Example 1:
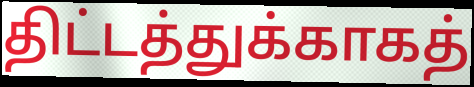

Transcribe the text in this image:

திட்டத்துக்காகத்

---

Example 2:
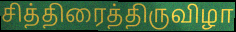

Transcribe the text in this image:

சித்திரைத்திருவிழா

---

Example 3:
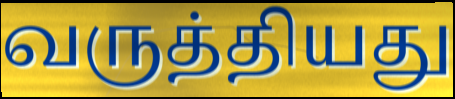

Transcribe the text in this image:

வருத்தியது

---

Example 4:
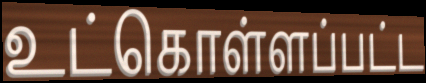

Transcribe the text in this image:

உட்கொள்ளப்பட்ட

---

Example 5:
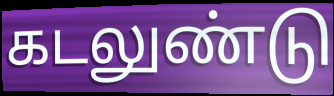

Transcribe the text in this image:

கடலுண்டு